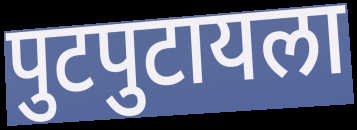
पुटपुटायला